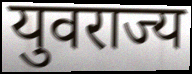
युवराज्य